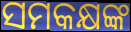
ସମକକ୍ଷଙ୍କ